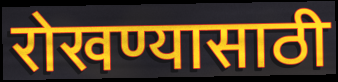
रोखण्यासाठी